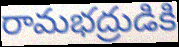
రామభద్రుడికి